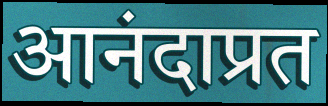
आनंदाप्रत